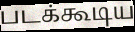
படக்கூடிய